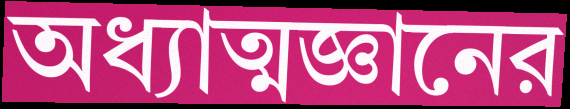
অধ্যাত্মজ্ঞানের